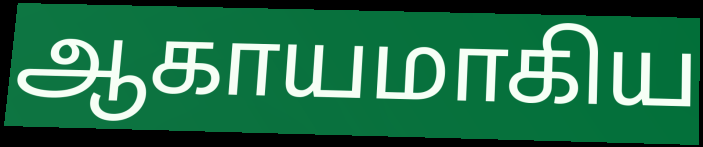
ஆகாயமாகிய